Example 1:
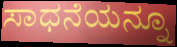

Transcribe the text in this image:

ಸಾಧನೆಯನ್ನೂ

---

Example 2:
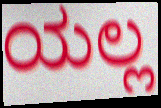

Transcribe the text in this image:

ಯಲ್ಲ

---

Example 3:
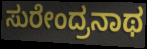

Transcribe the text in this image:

ಸುರೇಂದ್ರನಾಥ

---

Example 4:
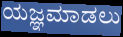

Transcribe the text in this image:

ಯಜ್ಞಮಾಡಲು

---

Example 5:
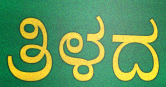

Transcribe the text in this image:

ತಿಳದ